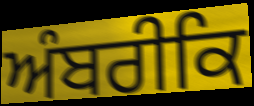
ਅੰਬਰੀਕਿ